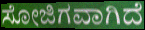
ಸೋಜಿಗವಾಗಿದೆ